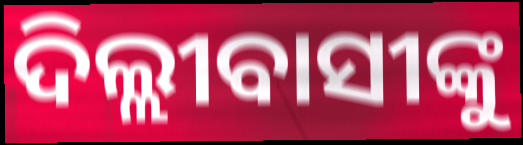
ଦିଲ୍ଲୀବାସୀଙ୍କୁ